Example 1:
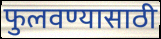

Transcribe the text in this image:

फुलवण्यासाठी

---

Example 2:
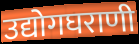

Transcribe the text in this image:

उद्योगघराणी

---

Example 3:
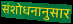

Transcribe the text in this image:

संशोधनानुसार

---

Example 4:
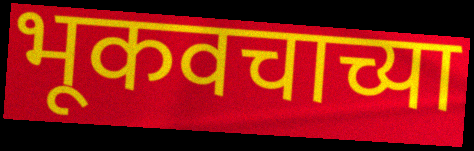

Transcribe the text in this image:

भूकवचाच्या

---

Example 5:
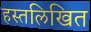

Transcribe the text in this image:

हस्तलिखित